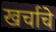
खर्चाचे